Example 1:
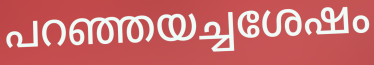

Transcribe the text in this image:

പറഞ്ഞയച്ചശേഷം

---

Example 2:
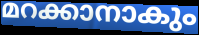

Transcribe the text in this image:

മറക്കാനാകും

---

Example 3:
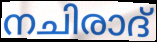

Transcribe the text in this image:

നചിരാദ്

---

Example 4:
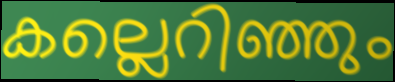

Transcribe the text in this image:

കല്ലെറിഞ്ഞും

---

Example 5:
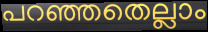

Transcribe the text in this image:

പറഞ്ഞതെല്ലാം